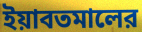
ইয়াবতমালের